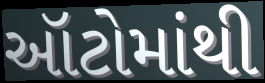
ઑટોમાંથી